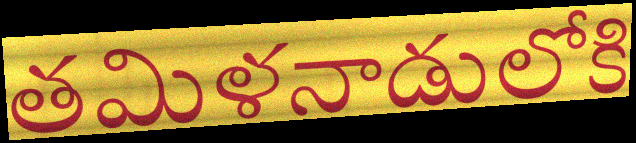
తమిళనాడులోకి